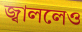
জ্বাললেও